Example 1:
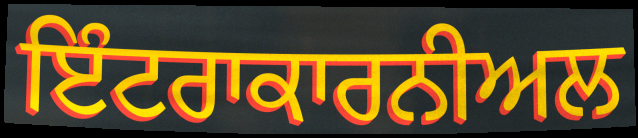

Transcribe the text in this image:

ਇੰਟਰਾਕਾਰਨੀਅਲ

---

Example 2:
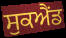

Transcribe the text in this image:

ਸੁਕਐਂਡ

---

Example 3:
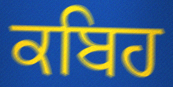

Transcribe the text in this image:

ਕਬਿਹ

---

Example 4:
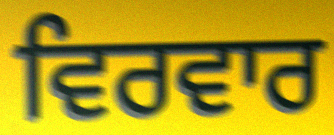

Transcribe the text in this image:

ਵਿਰਵਾਰ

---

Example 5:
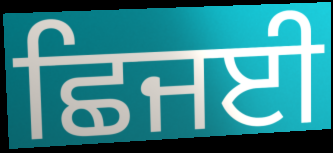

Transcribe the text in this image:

ਛਿਜਈ